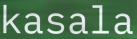
kasala